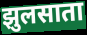
झुलसाता